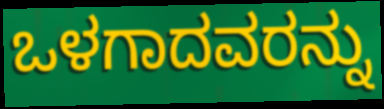
ಒಳಗಾದವರನ್ನು